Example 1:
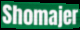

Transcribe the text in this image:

Shomajer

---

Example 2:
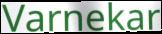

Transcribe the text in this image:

Varnekar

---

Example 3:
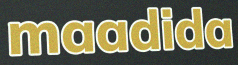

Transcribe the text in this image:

maadida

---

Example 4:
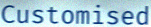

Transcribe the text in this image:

Customised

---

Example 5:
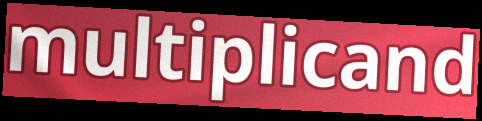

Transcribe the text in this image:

multiplicand